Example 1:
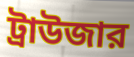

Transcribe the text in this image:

ট্রাউজার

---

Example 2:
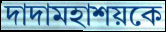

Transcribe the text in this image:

দাদামহাশয়কে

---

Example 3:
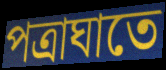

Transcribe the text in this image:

পত্রাঘাতে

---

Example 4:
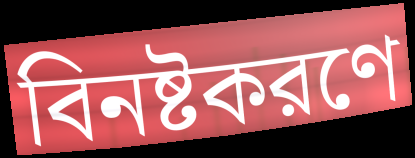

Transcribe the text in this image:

বিনষ্টকরণে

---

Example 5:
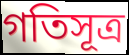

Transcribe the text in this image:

গতিসূত্র